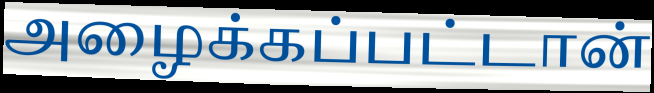
அழைக்கப்பட்டான்